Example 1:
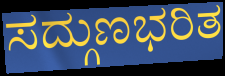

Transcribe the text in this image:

ಸದ್ಗುಣಭರಿತ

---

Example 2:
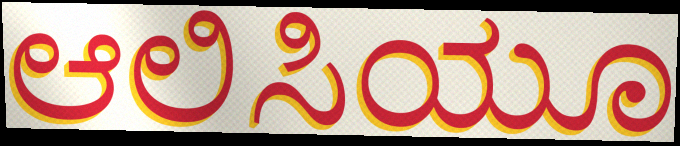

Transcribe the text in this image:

ಆಲಿಸಿಯೂ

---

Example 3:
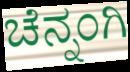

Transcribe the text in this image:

ಚೆನ್ನಂಗಿ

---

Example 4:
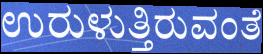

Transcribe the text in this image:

ಉರುಳುತ್ತಿರುವಂತೆ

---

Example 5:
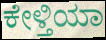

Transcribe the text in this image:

ಕೇಳ್ತಿಯಾ